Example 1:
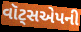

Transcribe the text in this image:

વૉટ્સએપની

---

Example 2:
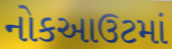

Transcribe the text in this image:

નોકઆઉટમાં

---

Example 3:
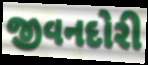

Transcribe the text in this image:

જીવનદોરી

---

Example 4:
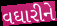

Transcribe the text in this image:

વઘારીને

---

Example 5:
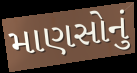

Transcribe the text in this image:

માણસોનું